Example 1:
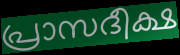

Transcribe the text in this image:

പ്രാസദീക്ഷ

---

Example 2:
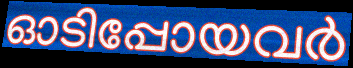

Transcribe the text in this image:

ഓടിപ്പോയവർ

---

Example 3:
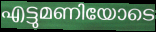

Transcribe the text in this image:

എട്ടുമണിയോടെ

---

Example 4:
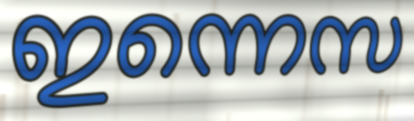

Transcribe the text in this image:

ഇന്നെസ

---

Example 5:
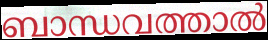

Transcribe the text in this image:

ബാന്ധവത്താൽ